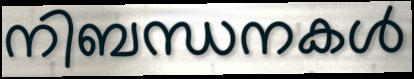
നിബന്ധനകൾ